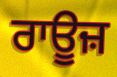
ਰਾਊਜ਼